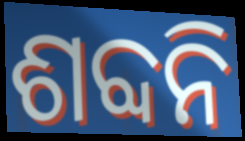
ଶବ୍ଦନି